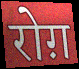
रोग़